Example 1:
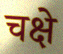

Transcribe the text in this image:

चक्षे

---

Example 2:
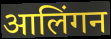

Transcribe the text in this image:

आलिंगन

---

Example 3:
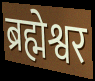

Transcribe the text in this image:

ब्रह्मेश्वर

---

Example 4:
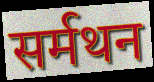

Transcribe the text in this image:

सर्मथन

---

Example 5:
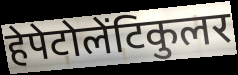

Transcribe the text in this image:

हेपेटोलेंटिकुलर